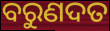
ବରୁଣଦତ